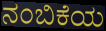
ನಂಬಿಕೆಯ